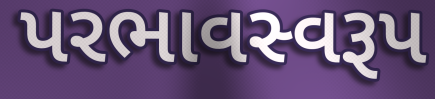
પરભાવસ્વરૂપ